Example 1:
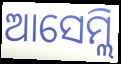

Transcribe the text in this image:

ଆସେମ୍ଲି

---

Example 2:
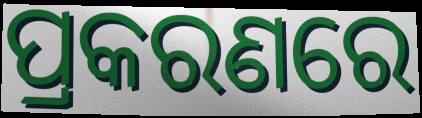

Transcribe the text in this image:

ପ୍ରକରଣରେ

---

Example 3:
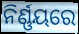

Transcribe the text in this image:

ନିର୍ଣ୍ଣୟରେ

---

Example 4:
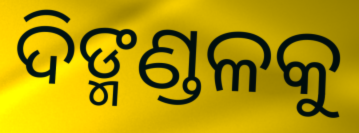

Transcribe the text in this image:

ଦିଙ୍ମଣ୍ଡଳକୁ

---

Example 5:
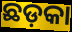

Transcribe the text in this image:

ଛଡ଼କା